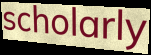
scholarly